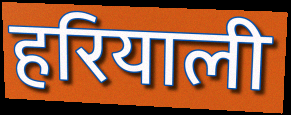
हरियाली